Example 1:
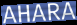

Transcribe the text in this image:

AHARA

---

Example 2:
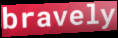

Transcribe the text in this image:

bravely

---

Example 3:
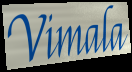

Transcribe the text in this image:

Vimala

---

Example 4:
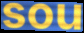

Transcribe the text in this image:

sou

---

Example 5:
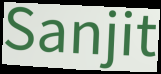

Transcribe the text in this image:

Sanjit